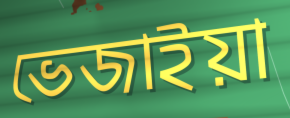
ভেজাইয়া